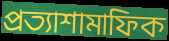
প্রত্যাশামাফিক